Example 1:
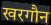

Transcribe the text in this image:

खरगौन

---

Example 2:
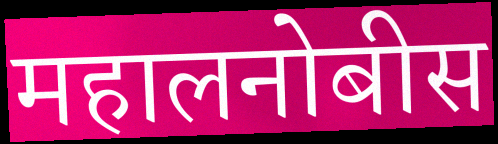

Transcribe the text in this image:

महालनोबीस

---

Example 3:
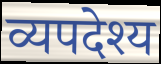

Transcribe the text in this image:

व्यपदेश्य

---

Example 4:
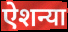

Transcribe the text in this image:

ऐशन्या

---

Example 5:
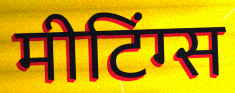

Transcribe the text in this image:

मीटिंग्स